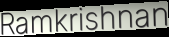
Ramkrishnan